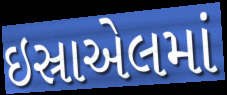
ઇસ્રાએલમાં